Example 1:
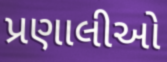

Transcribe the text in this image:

પ્રણાલીઓ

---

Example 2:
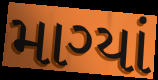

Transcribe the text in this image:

માગ્યાં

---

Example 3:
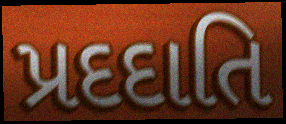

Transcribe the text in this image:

પ્રદદાતિ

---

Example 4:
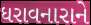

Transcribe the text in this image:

ધરાવનારાને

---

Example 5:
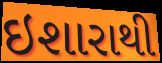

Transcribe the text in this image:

ઇશારાથી